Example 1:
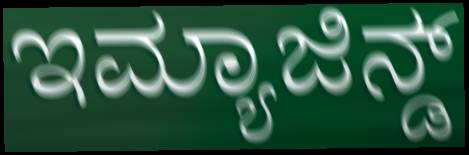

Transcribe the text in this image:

ಇಮ್ಯಾಜಿನ್ಡ್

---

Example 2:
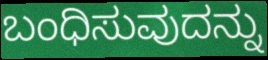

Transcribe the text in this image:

ಬಂಧಿಸುವುದನ್ನು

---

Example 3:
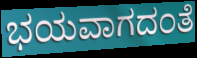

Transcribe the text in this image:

ಭಯವಾಗದಂತೆ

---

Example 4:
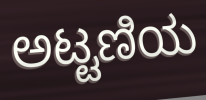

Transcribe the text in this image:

ಅಟ್ಟಣಿಯ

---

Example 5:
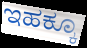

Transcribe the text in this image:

ಇಹಕ್ಕೂ